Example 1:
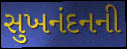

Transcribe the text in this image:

સુખનંદનની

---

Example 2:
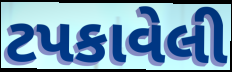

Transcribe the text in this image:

ટપકાવેલી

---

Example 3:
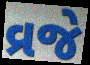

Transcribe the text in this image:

વ્રજે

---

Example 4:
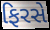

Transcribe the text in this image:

ફિરસે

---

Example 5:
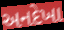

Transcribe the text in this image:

અનદેખા